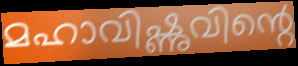
മഹാവിഷ്ണുവിന്റെ